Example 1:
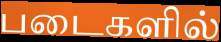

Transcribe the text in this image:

படைகளில்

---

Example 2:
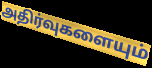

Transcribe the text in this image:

அதிர்வுகளையும்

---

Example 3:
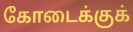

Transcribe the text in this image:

கோடைக்குக்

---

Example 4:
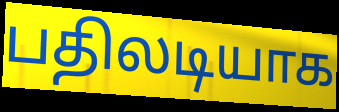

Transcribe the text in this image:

பதிலடியாக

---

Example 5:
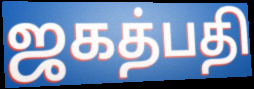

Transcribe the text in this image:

ஜகத்பதி